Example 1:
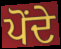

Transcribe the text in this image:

ਪੋਂਦੇ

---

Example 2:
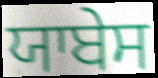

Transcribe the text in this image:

ਯਾਬੇਸ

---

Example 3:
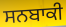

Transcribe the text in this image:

ਸਨਬਾਕੀ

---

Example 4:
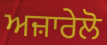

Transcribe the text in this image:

ਅਜ਼ਾਰੇਲੋ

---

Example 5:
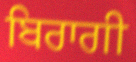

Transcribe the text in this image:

ਬਿਰਾਗੀ